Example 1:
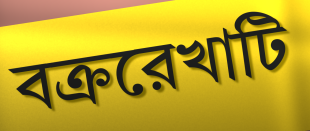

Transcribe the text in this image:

বক্ররেখাটি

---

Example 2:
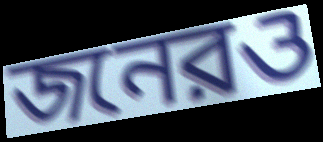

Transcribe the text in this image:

জনেরও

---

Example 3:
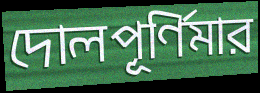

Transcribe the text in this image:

দোলপূর্ণিমার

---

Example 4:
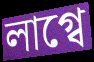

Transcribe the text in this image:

লাগ্বে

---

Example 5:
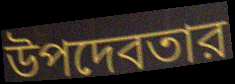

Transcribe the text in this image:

উপদেবতার